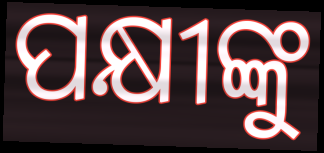
ପକ୍ଷୀଙ୍କୁ